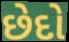
છેદો